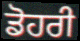
ਡੋਹਰੀ